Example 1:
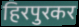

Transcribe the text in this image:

हिरपुरकर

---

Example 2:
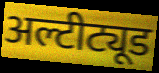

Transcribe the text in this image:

अल्टीट्यूड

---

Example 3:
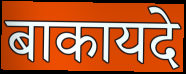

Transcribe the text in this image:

बाकायदे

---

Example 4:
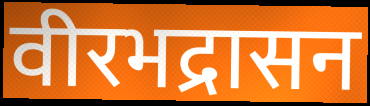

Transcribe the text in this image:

वीरभद्रासन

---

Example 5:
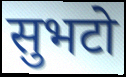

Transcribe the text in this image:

सुभटो